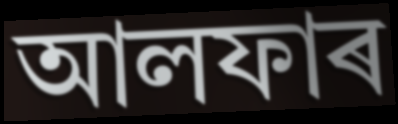
আলফাৰ